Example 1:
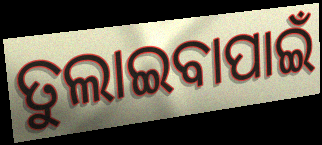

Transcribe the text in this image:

ତୁଲାଇବାପାଇଁ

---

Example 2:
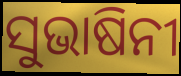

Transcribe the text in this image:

ସୁଭାଷିନୀ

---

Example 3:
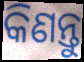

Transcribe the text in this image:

କିଣନ୍ତୁ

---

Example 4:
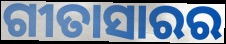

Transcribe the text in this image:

ଗୀତାସାରର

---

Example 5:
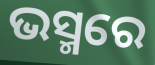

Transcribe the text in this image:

ଭସ୍ମରେ